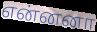
என்னனா